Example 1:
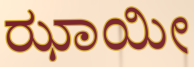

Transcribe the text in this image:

ಝಾಯೀ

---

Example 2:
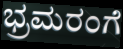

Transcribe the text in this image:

ಭ್ರಮರಂಗೆ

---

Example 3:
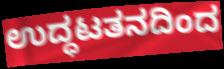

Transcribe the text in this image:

ಉದ್ಧಟತನದಿಂದ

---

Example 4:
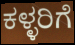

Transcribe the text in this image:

ಕಳ್ಳರಿಗೆ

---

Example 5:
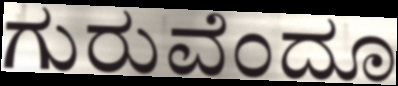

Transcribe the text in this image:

ಗುರುವೆಂದೂ